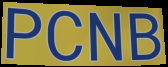
PCNB